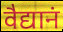
वैद्यानं